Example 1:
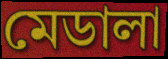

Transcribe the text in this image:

মেডালা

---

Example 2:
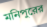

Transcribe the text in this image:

মনিপুরের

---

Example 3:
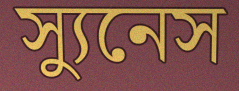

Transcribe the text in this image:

স্যুনেস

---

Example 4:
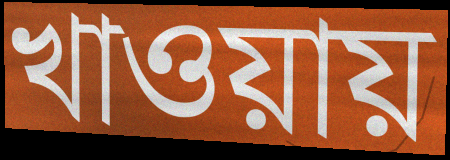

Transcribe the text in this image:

খাওয়ায়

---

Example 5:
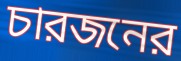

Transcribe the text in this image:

চারজনের